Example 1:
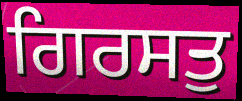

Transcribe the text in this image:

ਗਿਰਸਤੁ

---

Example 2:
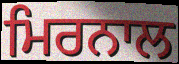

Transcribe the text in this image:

ਮਿਰਨਾਲ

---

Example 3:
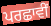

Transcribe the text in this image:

ਪਰਛਾਵੀਂ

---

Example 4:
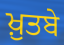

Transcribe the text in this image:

ਖ਼ੁਤਬੇ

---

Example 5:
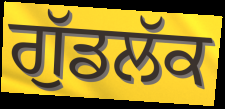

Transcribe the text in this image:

ਗੁੱਡਲੱਕ